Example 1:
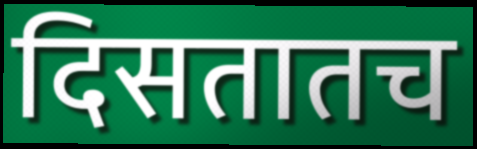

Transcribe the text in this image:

दिसतातच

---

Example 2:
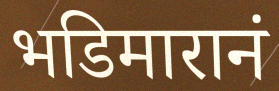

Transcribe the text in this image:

भडिमारानं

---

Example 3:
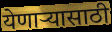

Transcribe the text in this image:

येणाऱ्यासाठी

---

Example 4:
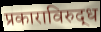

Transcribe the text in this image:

प्रकाराविरुद्ध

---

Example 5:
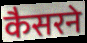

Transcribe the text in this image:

कैसरने